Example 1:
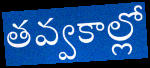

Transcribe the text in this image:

తవ్వకాల్లో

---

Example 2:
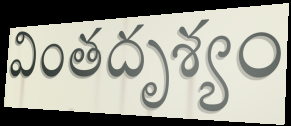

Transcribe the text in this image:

వింతదృశ్యం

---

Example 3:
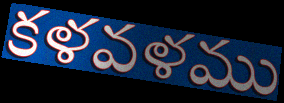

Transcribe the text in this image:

కళవళము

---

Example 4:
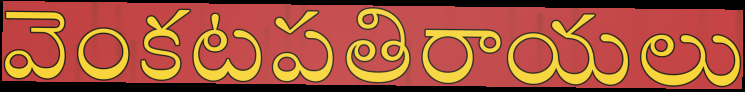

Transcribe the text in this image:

వెంకటపతిరాయలు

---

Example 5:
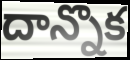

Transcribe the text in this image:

దాన్నొక